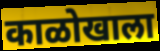
काळोखाला